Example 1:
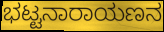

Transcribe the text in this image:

ಭಟ್ಟನಾರಾಯಣನ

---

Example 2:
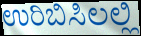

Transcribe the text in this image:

ಉರಿಬಿಸಿಲಲ್ಲಿ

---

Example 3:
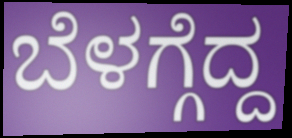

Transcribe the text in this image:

ಬೆಳಗ್ಗೆದ್ದ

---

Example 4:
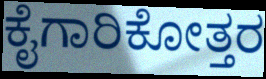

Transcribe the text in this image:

ಕೈಗಾರಿಕೋತ್ತರ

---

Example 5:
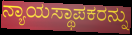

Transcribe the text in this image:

ನ್ಯಾಯಸ್ಥಾಪಕರನ್ನು